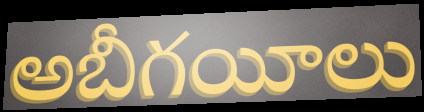
అబీగయీలు